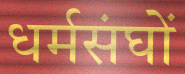
धर्मसंघों